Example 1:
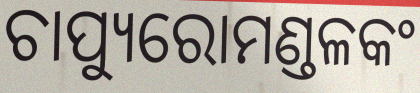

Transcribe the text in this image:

ଚାପ୍ୟୁରୋମଣ୍ଡଳକଂ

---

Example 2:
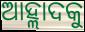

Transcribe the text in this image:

ଆହ୍ଲାଦକୁ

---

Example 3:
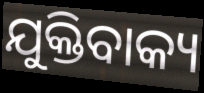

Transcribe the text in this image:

ଯୁକ୍ତିବାକ୍ୟ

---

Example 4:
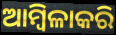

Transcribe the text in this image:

ଆମ୍ବିଳାକରି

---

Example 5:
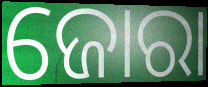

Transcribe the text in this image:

ଜୋରା